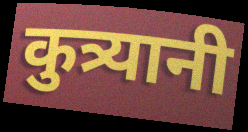
कुत्र्यानी